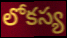
లోకస్య